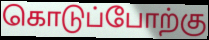
கொடுப்போற்கு